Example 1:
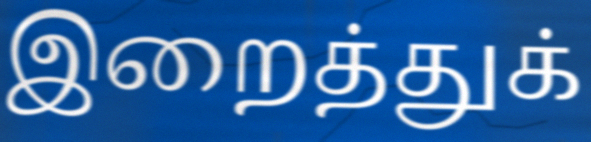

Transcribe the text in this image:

இறைத்துக்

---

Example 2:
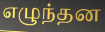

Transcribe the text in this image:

எழுந்தன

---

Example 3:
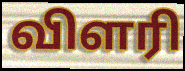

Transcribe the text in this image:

விளரி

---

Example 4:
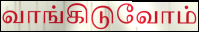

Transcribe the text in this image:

வாங்கிடுவோம்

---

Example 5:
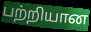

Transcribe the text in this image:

பற்றியான